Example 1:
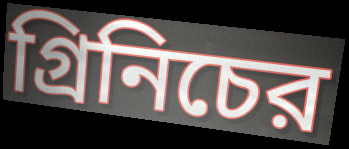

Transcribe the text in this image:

গ্রিনিচের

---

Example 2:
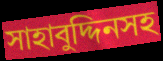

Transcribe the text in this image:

সাহাবুদ্দিনসহ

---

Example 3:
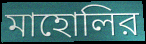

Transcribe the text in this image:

মাহোলির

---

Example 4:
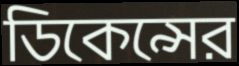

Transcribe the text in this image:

ডিকেন্সের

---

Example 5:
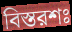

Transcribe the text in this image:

বিস্তরশঃ